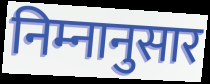
निम्‍नानुसार